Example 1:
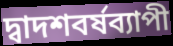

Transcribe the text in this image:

দ্বাদশবর্ষব্যাপী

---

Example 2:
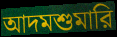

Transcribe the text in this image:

আদমশুমারি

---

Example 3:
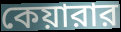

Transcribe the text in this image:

কেয়ারার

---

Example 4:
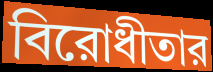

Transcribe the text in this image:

বিরোধীতার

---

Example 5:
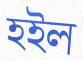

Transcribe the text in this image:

হইল